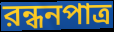
রন্ধনপাত্র